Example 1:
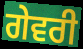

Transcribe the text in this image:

ਗੇਵਰੀ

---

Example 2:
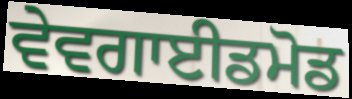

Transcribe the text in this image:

ਵੇਵਗਾਈਡਮੋਡ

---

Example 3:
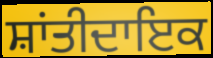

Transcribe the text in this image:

ਸ਼ਾਂਤੀਦਾਇਕ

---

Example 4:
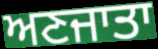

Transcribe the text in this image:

ਅਣਜਾਤਾ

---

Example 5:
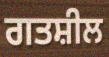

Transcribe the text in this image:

ਗਤਸ਼ੀਲ